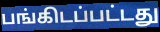
பங்கிடப்பட்டது